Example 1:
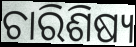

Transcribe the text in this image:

ଚାରିଶିଷ୍ୟ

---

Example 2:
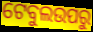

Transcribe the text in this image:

ଟେବୁଲଉପରୁ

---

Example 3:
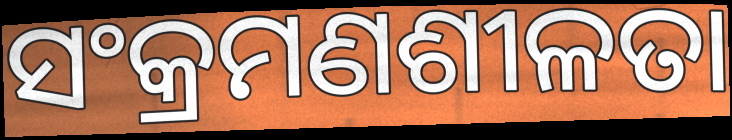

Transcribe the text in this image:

ସଂକ୍ରମଣଶୀଳତା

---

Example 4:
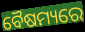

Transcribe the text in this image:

ବୈଷମ୍ୟରେ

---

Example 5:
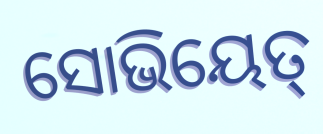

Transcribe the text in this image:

ସୋଭିୟେତ୍